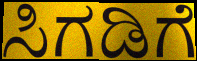
ಸಿಗಡಿಗೆ